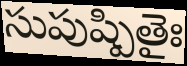
సుపుష్పితైః